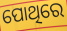
ପୋଥିରେ